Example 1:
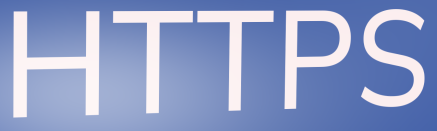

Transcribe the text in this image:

HTTPS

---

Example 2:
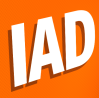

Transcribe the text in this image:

IAD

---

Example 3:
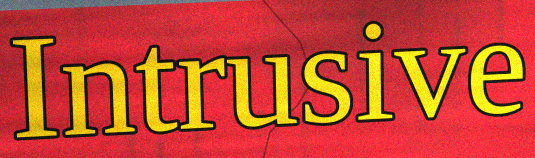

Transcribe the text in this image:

Intrusive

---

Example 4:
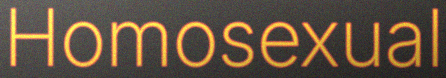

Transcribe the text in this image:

Homosexual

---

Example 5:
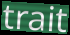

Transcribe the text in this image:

trait